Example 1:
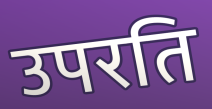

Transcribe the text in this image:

उपरति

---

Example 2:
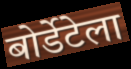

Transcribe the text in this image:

बोर्डेटेला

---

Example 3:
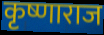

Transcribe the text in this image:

कृष्णाराज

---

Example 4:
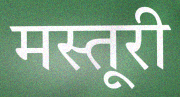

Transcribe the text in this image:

मस्तूरी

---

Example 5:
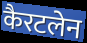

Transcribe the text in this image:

कैरटलेन